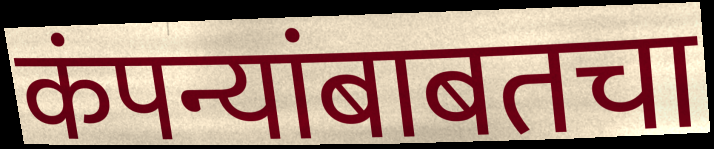
कंपन्यांबाबतचा